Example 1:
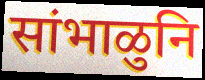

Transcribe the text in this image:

सांभाळुनि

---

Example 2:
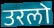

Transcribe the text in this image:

उरलो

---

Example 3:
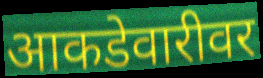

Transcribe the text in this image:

आकडेवारीवर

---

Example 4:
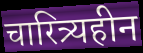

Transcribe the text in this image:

चारित्र्यहीन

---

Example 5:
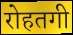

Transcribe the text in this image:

रोहतगी